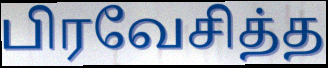
பிரவேசித்த